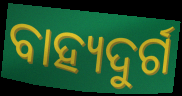
ବାହ୍ୟଦୁର୍ଗ